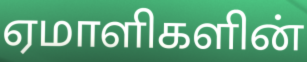
ஏமாளிகளின்